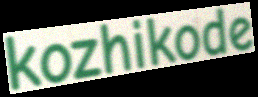
kozhikode